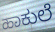
ಹಾಕುಲೆ